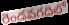
రెండవగదిలో